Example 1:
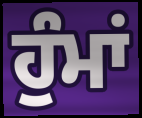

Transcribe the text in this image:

ਹੁੰਮਾਂ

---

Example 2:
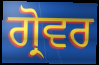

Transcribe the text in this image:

ਗ੍ਰੋਵਰ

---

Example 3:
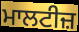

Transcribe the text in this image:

ਮਾਲਟੀਜ਼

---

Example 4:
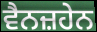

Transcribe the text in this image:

ਵੈਨਜ਼ਹੇਨ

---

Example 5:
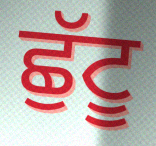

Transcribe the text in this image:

ਛੁੱਟੂ